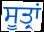
ਸੂਤ੍ਰਾਂ